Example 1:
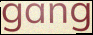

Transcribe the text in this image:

gang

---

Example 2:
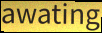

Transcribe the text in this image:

awating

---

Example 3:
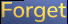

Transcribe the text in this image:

Forget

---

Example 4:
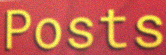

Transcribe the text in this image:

Posts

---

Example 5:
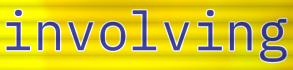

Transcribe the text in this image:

involving